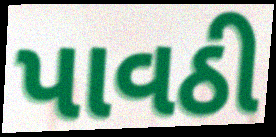
પાવઠી